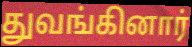
துவங்கினார்